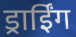
ड्राईिंग